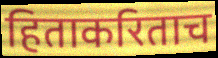
हिताकरिताच